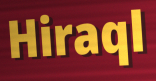
Hiraql